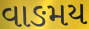
વાઙમય